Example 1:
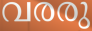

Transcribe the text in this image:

വരരു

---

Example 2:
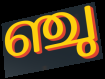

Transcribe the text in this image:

ഞ്ചു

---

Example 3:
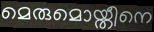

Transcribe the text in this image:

മെരുമൊയ്തീനെ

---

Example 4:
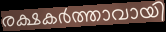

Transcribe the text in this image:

രക്ഷകർത്താവായി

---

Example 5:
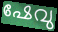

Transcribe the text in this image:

ഷേവു